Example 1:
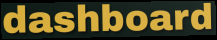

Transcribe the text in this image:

dashboard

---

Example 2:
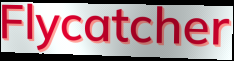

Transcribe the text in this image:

Flycatcher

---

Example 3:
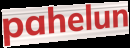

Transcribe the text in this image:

pahelun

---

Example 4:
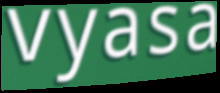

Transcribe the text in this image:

vyasa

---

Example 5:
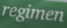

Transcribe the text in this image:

regimen